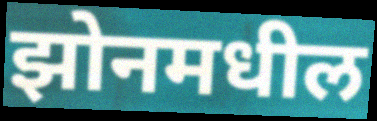
झोनमधील